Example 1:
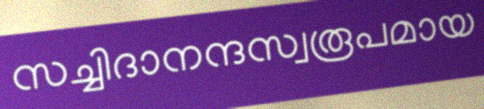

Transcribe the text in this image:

സച്ചിദാനന്ദസ്വരൂപമായ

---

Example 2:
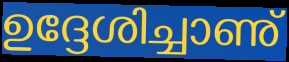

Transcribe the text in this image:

ഉദ്ദേശിച്ചാണു്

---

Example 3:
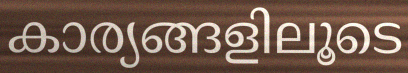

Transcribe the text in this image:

കാര്യങ്ങളിലൂടെ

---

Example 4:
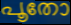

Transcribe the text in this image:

പൂതോ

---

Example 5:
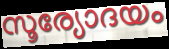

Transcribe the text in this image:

സൂര്യോദയം